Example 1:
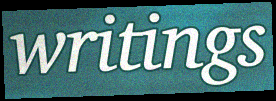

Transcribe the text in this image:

writings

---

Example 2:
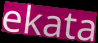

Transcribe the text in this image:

ekata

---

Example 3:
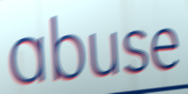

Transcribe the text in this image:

abuse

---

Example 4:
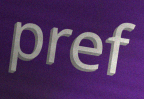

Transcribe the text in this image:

pref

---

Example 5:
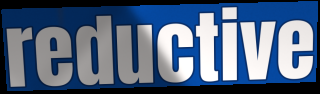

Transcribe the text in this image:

reductive